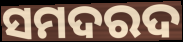
ସମଦରଦ